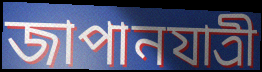
জাপানযাত্রী